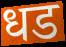
धड